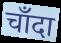
चाँदा